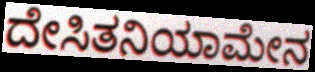
ದೇಸಿತನಿಯಾಮೇನ